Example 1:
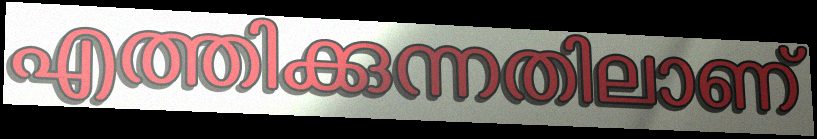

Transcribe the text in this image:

എത്തിക്കുന്നതിലാണ്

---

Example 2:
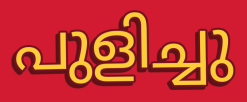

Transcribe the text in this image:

പുളിച്ചു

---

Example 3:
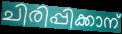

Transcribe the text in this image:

ചിരിപ്പിക്കാന്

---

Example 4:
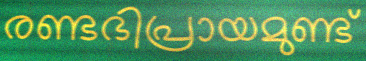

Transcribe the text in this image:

രണ്ടഭിപ്രായമുണ്ട്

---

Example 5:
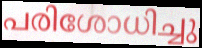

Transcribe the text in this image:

പരിശോധിച്ചു